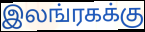
இலங்ரகக்கு